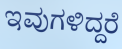
ಇವುಗಳಿದ್ದರೆ